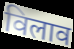
विलाव